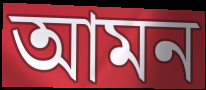
আমন